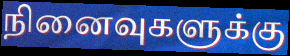
நினைவுகளுக்கு